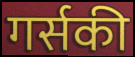
गर्सकी